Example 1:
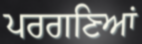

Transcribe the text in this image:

ਪਰਗਣਿਆਂ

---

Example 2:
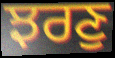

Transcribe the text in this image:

ਝਰਣੁ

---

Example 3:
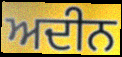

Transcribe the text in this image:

ਅਦੀਨ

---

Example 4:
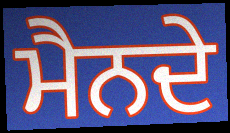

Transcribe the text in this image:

ਮੈਨਦੇ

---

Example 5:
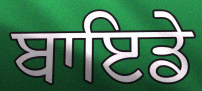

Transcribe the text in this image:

ਬਾਇਡੇ